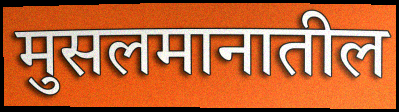
मुसलमानातील